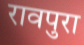
रावपुरा